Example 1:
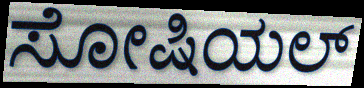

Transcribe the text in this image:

ಸೋಷಿಯಲ್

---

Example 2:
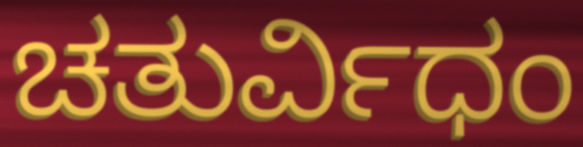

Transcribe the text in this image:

ಚತುರ್ವಿಧಂ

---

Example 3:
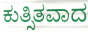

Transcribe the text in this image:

ಕುತ್ಸಿತವಾದ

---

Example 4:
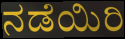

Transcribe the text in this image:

ನಡೆಯಿರಿ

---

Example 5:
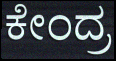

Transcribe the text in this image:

ಕೇಂದ್ರ